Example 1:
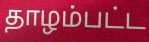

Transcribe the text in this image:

தாழம்பட்ட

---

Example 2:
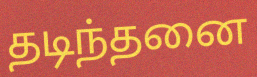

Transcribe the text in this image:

தடிந்தனை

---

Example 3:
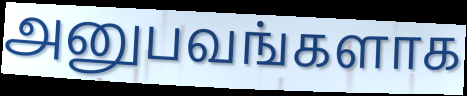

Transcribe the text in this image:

அனுபவங்களாக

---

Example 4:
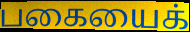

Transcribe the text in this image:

பகையைக்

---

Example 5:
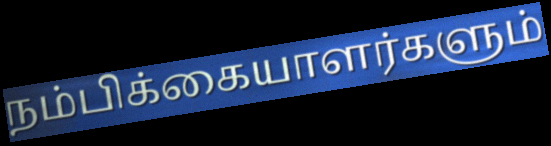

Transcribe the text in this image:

நம்பிக்கையாளர்களும்